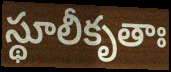
స్థూలీకృతాః